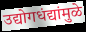
उद्योगधंद्यांमुळे